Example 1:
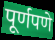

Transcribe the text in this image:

पूर्णपणे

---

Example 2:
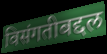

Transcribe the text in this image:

विसंगतीबद्दल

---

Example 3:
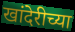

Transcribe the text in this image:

खांदेरीच्या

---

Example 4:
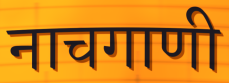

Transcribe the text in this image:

नाचगाणी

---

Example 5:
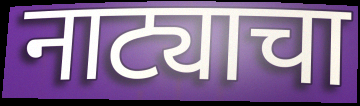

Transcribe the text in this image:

नाट्याचा